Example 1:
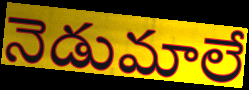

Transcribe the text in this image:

నెడుమాలే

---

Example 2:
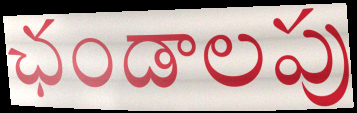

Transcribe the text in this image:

ఛండాలపు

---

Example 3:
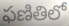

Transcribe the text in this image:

ఫణితిలో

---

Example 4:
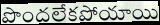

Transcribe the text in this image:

పొందలేకపోయాయి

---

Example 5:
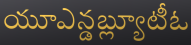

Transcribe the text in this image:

యూఎన్డబ్ల్యూటీఓ